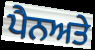
ਪੈਨਅਤੇ